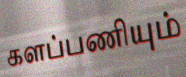
களப்பணியும்